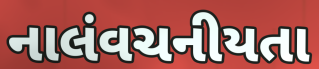
નાલંવચનીયતા